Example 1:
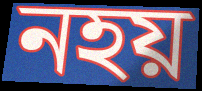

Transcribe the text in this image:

নহয়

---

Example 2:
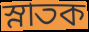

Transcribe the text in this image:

স্নাতক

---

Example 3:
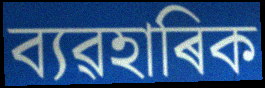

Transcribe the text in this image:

ব্যৱহাৰিক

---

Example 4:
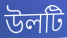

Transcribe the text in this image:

উলটি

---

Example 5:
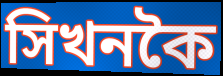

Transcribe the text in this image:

সিখনকৈ